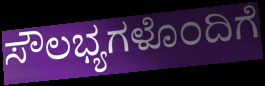
ಸೌಲಭ್ಯಗಳೊಂದಿಗೆ